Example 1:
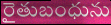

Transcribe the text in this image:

రైతుబంధును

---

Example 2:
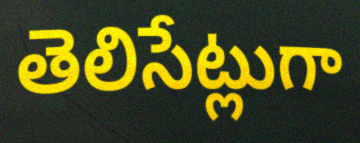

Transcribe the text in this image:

తెలిసేట్లుగా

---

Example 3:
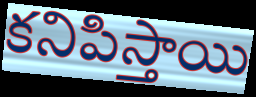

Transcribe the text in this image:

కనిపిస్తాయి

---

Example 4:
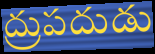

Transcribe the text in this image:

ద్రుపదుడు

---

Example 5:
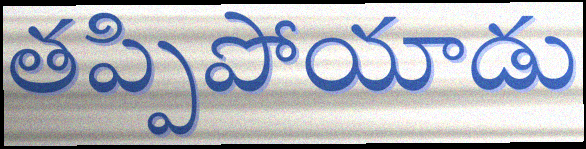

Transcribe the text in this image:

తప్పిపోయాడు